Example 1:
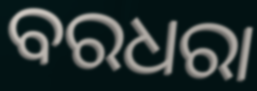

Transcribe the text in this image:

ବରଧରା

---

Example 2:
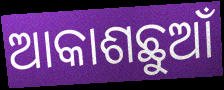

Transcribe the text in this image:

ଆକାଶଛୁଆଁ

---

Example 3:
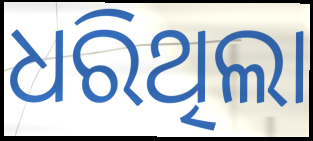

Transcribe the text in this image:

ଧରିଥିଲା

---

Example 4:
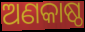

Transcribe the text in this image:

ଅଣକାଷ୍ଠ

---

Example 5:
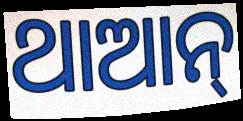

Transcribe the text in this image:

ଥାଆନ୍